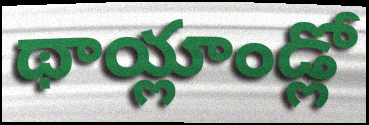
థాయ్లాండ్లో